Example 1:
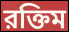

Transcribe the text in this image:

রক্তিম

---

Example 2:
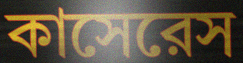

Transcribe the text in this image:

কাসেরেস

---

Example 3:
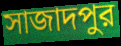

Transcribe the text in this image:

সাজাদপুর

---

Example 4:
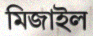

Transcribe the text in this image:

মিজাইল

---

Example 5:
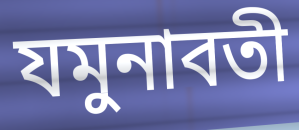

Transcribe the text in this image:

যমুনাবতী